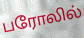
பரோலில்